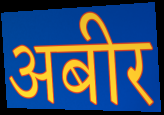
अबीर